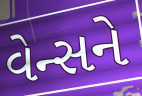
વેન્સને